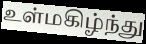
உள்மகிழ்ந்து